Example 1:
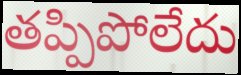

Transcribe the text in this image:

తప్పిపోలేదు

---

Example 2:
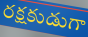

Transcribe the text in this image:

రక్షకుడుగా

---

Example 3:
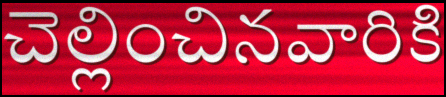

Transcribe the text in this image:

చెల్లించినవారికి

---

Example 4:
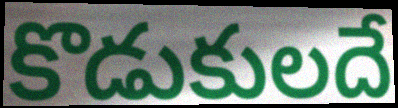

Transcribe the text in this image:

కొడుకులదే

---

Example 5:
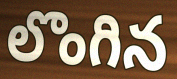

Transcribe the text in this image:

లొంగిన